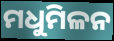
ମଧୁମିଳନ